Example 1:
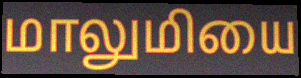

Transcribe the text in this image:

மாலுமியை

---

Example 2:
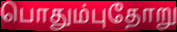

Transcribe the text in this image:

பொதும்புதோறு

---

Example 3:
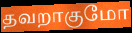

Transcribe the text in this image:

தவறாகுமோ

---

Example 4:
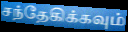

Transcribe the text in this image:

சந்தேகிக்கவும்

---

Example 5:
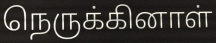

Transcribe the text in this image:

நெருக்கினாள்